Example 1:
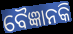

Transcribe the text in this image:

ବୈଜ୍ଞାନକି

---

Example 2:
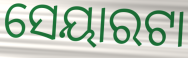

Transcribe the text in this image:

ସେୟାରଟା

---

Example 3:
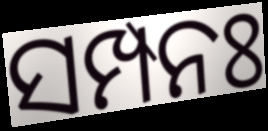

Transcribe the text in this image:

ସମ୍ପନଃ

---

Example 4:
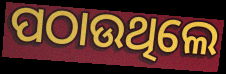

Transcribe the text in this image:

ପଠାଉଥିଲେ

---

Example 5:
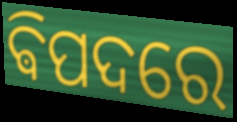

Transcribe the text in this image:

ଵିପଦରେ